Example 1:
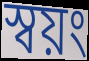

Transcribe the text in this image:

স্বয়ং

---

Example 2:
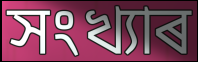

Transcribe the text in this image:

সংখ্যাৰ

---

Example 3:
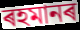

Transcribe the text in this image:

ৰহমানৰ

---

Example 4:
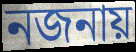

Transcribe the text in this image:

নজনায়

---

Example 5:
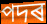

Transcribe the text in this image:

পদৰ